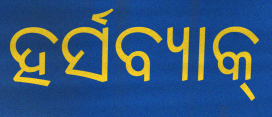
ହର୍ସବ୍ୟାକ୍